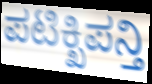
ಪಟಿಕ್ಖಿಪನ್ತಿ